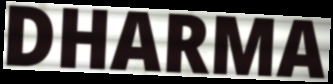
DHARMA